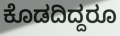
ಕೊಡದಿದ್ದರೂ